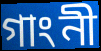
গাংনী